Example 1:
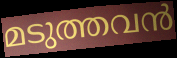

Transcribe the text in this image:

മടുത്തവൻ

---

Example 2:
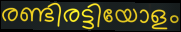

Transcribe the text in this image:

രണ്ടിരട്ടിയോളം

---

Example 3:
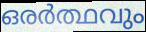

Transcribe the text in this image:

ഒരർത്ഥവും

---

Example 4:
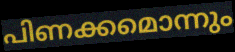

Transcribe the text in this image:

പിണക്കമൊന്നും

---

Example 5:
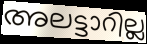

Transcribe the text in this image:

അലട്ടാറില്ല